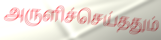
அருளிச்செய்ததும்